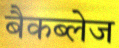
बैकब्लेज